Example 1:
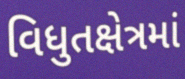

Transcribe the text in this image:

વિધુતક્ષેત્રમાં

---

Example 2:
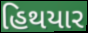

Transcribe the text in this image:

હિથયાર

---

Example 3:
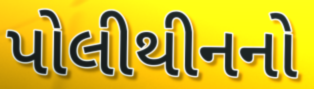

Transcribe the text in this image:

પોલીથીનનો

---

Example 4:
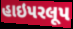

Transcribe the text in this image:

હાઇપરલૂપ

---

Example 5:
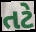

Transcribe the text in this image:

તટે